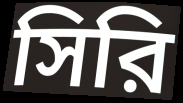
সিরি